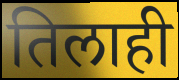
तिलाही